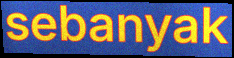
sebanyak